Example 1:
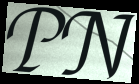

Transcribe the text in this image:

PN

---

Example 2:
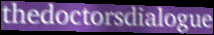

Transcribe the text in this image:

thedoctorsdialogue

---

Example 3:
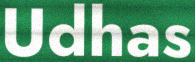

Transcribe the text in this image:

Udhas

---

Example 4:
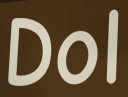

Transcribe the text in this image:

Dol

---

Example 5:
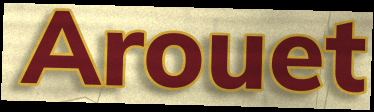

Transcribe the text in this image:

Arouet